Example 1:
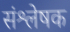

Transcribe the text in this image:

संश्लेषक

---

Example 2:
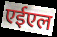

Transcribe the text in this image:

एईएल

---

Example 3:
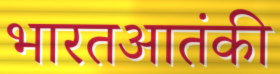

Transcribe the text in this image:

भारतआतंकी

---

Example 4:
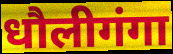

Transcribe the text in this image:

धौलीगंगा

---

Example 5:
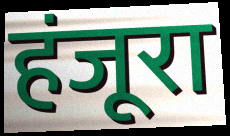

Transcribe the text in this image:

हंजूरा